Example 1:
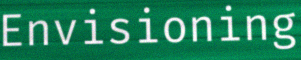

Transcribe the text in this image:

Envisioning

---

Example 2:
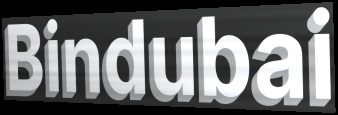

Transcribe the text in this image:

Bindubai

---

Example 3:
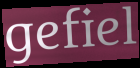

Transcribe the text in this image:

gefiel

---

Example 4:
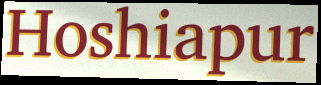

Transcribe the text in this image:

Hoshiapur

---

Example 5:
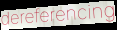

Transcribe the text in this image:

dereferencing